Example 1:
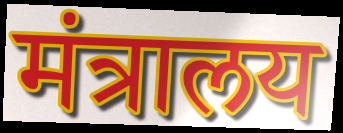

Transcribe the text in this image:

मंत्रालय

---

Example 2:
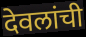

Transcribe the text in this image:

देवलांची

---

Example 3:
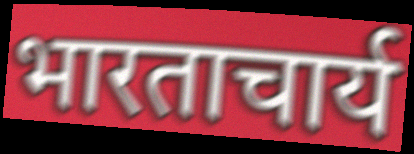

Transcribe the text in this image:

भारताचार्य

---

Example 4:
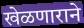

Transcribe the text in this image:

खेळणाराने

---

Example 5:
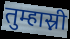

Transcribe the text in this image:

तुम्हास्नी